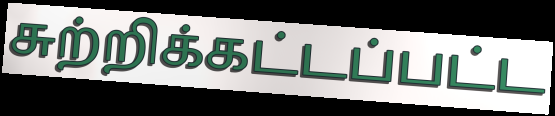
சுற்றிக்கட்டப்பட்ட